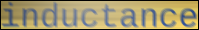
inductance